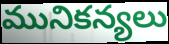
మునికన్యలు